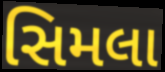
સિમલા